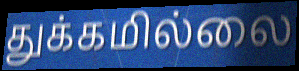
துக்கமில்லை